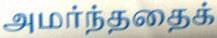
அமர்ந்ததைக்